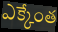
ఎక్కేంత